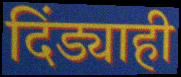
दिंड्याही